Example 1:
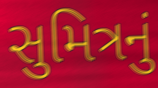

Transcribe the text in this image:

સુમિત્રનું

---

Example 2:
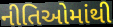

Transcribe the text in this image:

નીતિઓમાંથી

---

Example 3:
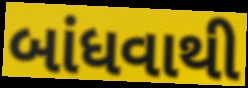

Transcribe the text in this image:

બાંધવાથી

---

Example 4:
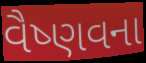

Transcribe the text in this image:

વૈષ્ણવના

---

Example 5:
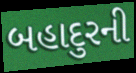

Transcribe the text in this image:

બહાદુરની